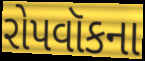
રોપવૉકના